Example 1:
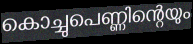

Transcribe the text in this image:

കൊച്ചുപെണ്ണിന്റെയും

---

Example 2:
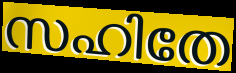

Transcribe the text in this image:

സഹിതേ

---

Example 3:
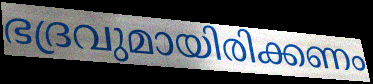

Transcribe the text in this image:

ഭദ്രവുമായിരിക്കണം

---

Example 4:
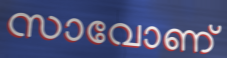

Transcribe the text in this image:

സാവോണ്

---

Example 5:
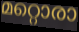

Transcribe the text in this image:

മറ്റൊരാ